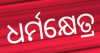
ଧର୍ମକ୍ଷେତ୍ର